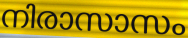
നിരാസാസം